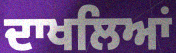
ਦਾਖਲਿਆਂ